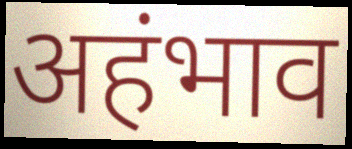
अहंभाव